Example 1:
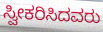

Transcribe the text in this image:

ಸ್ವೀಕರಿಸಿದವರು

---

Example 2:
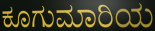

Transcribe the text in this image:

ಕೂಗುಮಾರಿಯ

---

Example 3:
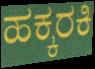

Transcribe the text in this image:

ಹಕ್ಕರಕಿ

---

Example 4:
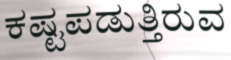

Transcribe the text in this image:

ಕಷ್ಟಪಡುತ್ತಿರುವ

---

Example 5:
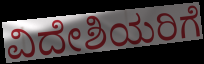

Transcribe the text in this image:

ವಿದೇಶಿಯರಿಗೆ